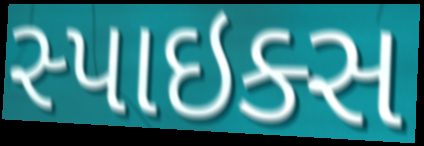
સ્પાઇક્સ